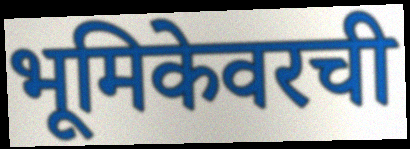
भूमिकेवरची